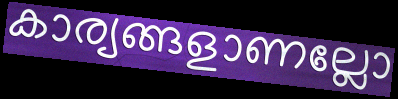
കാര്യങ്ങളാണല്ലോ